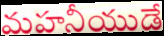
మహనీయుడే